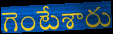
గెంటేశారు